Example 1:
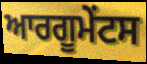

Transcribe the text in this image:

ਆਰਗੂਮੇੰਟਸ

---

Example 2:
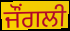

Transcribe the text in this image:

ਜੌਂਗਲੀ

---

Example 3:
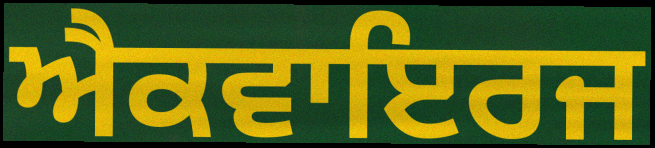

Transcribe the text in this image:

ਐਕਵਾਇਰਜ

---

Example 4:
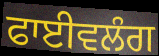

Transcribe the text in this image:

ਫਾਈਵਲੰਗ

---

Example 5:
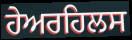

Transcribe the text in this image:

ਹੇਅਰਹਿਲਸ